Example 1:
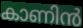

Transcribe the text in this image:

കാണിൻ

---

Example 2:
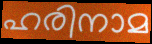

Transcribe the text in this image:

ഹരിനാമ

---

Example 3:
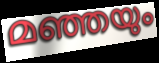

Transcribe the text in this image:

മഞ്ഞയും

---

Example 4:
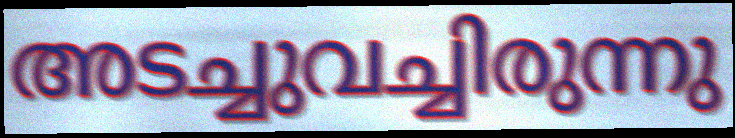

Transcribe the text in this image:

അടച്ചുവച്ചിരുന്നു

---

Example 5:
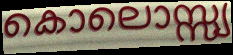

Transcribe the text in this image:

കൊലൊസ്സ്യ